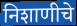
निशाणीचे